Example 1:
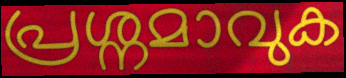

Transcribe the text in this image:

പ്രശ്നമാവുക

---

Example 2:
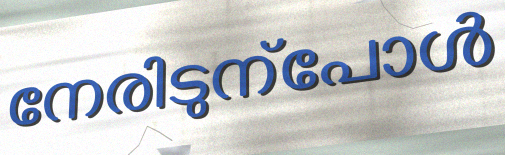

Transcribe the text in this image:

നേരിടുന്പോൾ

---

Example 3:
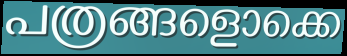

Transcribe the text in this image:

പത്രങ്ങളൊക്കെ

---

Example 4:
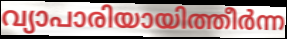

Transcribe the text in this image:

വ്യാപാരിയായിത്തീർന്ന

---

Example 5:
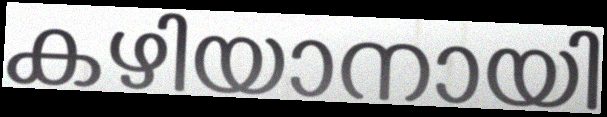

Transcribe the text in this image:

കഴിയാനായി